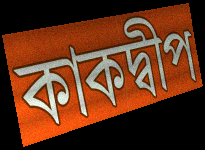
কাকদ্বীপ